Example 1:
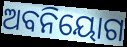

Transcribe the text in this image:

ଅବନିୟୋଗ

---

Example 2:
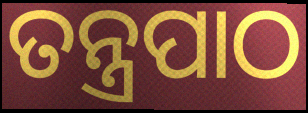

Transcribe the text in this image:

ତନ୍ତ୍ରପାଠ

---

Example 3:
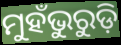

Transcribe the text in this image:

ମୁହଁଭୁରୁଡ଼ି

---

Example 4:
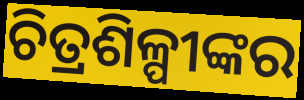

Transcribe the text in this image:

ଚିତ୍ରଶିଳ୍ପୀଙ୍କର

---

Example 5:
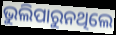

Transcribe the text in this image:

ଭୁଲିପାରୁନଥିଲେ